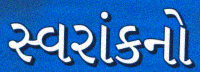
સ્વરાંકનો